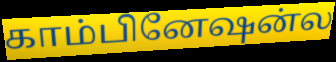
காம்பினேஷன்ல